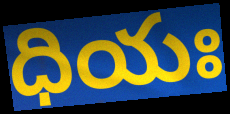
ధియః